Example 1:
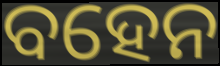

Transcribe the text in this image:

ବହେନ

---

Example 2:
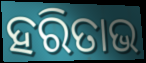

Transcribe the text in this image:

ହରିତାଭ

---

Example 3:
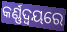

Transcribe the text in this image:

କର୍ଣ୍ଣଦ୍ୱୟରେ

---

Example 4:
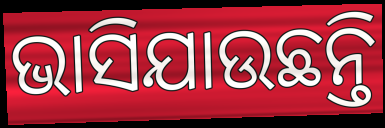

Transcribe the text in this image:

ଭାସିଯାଉଛନ୍ତି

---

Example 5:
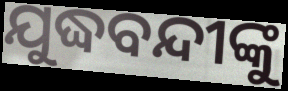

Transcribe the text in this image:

ଯୁଦ୍ଧବନ୍ଦୀଙ୍କୁ